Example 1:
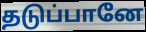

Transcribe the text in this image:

தடுப்பானே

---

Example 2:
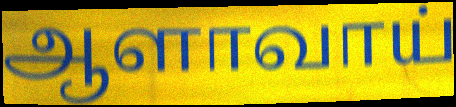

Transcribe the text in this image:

ஆளாவாய்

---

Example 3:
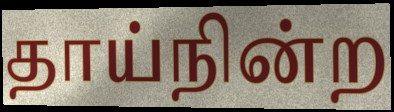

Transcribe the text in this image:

தாய்நின்ற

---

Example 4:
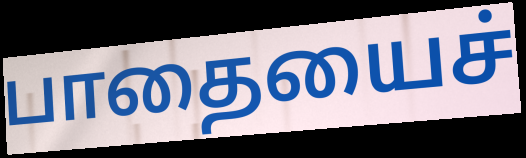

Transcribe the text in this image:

பாதையைச்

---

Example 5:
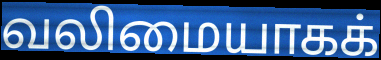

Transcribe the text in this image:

வலிமையாகக்